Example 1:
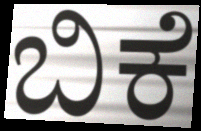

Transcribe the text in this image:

ಬಿಕೆ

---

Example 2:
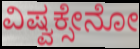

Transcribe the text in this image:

ವಿಷ್ವಕ್ಸೇನೋ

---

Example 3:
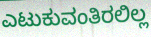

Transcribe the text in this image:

ಎಟುಕುವಂತಿರಲಿಲ್ಲ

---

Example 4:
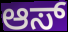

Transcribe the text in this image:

ಆಸ್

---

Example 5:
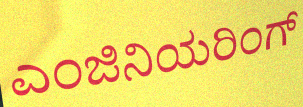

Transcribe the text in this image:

ಎಂಜಿನಿಯರಿಂಗ್